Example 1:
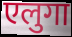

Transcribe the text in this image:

एलुगा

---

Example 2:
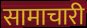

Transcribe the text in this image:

सामाचारी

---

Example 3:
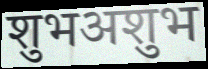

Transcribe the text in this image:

शुभअशुभ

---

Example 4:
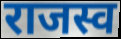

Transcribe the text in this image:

राजस्व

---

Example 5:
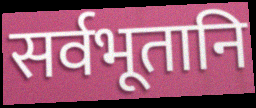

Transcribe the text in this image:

सर्वभूतानि